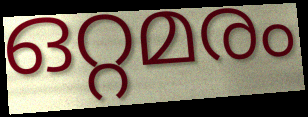
ഒറ്റമരം